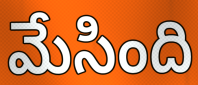
మేసింది